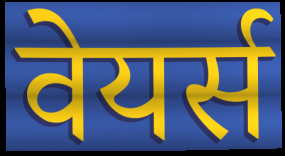
वेयर्स